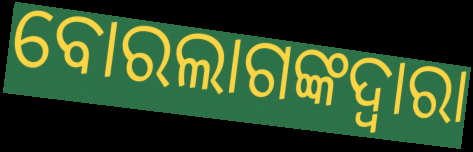
ବୋରଲାଗଙ୍କଦ୍ୱାରା